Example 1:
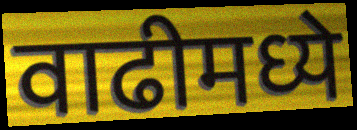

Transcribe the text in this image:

वाढीमध्ये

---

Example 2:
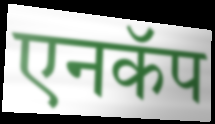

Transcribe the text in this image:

एनकॅप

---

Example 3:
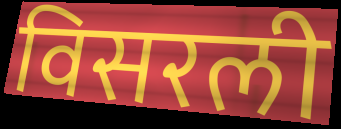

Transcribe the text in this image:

विसरली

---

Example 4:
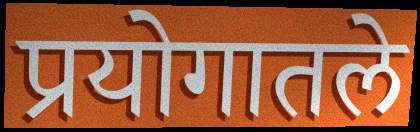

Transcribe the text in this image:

प्रयोगातले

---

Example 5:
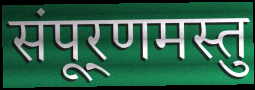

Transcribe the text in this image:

संपूर्णमस्तु